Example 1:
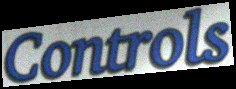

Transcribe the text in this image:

Controls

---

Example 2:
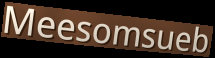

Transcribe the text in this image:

Meesomsueb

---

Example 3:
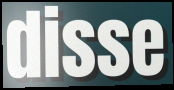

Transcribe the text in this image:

disse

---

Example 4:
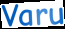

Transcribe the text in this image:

Varu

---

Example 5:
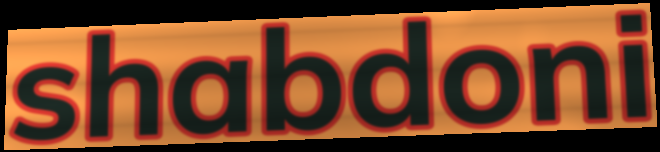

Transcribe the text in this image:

shabdoni